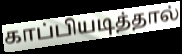
காப்பியடித்தால்